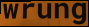
wrung